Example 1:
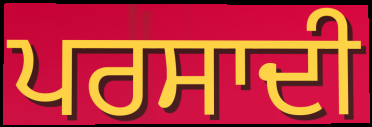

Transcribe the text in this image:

ਪਰਸਾਦੀ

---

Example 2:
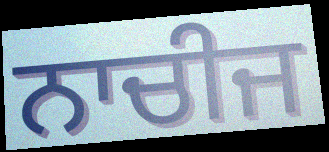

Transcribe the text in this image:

ਨਾਚੀਜ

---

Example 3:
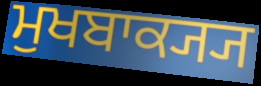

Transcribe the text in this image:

ਮੁਖਬਾਕ੍ਯ੍ਯ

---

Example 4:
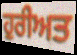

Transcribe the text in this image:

ਹੁਰੀਅਤ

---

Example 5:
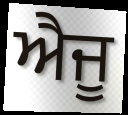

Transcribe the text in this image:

ਐਜੂ